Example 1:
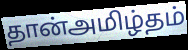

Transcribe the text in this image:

தான்அமிழ்தம்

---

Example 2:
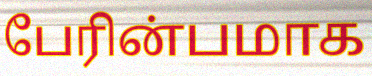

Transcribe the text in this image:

பேரின்பமாக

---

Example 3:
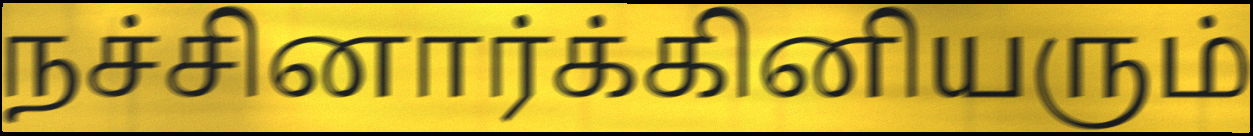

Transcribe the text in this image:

நச்சினார்க்கினியரும்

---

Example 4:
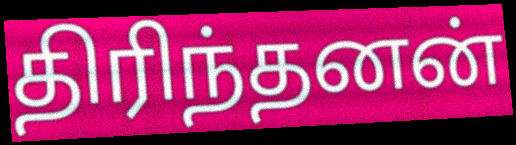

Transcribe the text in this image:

திரிந்தனன்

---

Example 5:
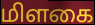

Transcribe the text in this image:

மிளகை